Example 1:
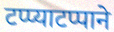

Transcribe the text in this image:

टप्प्याटप्पाने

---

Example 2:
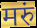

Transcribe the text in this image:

मरुं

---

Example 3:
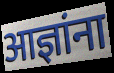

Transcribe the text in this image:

आज्ञांना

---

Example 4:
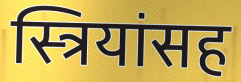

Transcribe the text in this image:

स्त्रियांसह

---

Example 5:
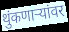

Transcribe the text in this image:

थुंकणाऱ्यांवर